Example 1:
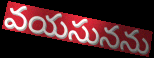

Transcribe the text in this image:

వయసునను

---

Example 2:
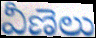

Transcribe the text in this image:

వీణెలు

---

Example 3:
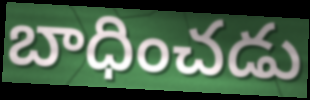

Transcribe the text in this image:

బాధించడు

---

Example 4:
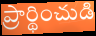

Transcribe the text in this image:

ప్రార్థించుడి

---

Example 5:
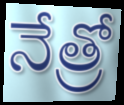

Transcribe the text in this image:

నేత్రో